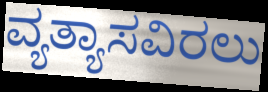
ವ್ಯತ್ಯಾಸವಿರಲು